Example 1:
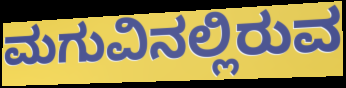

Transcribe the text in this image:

ಮಗುವಿನಲ್ಲಿರುವ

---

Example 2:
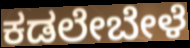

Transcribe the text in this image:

ಕಡಲೇಬೇಳೆ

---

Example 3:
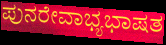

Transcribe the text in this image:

ಪುನರೇವಾಭ್ಯಭಾಷತ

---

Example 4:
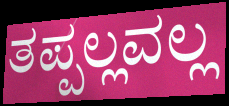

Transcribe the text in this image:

ತಪ್ಪಲ್ಲವಲ್ಲ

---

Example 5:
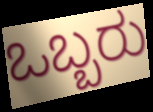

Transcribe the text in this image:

ಒಬ್ಬರು